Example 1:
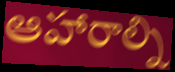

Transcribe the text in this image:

ఆహారాల్ని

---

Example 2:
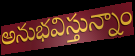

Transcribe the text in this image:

అనుభవిస్తున్నాం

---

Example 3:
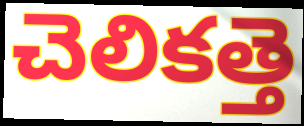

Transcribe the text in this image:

చెలికత్తె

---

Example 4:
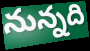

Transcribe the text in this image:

నున్నది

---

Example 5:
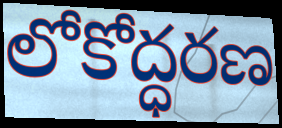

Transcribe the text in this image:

లోకోద్ధరణ